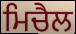
ਮਿਚੈਲ